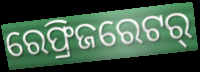
ରେଫ୍ରିଜରେଟର୍